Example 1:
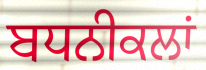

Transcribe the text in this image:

ਬਧਨੀਕਲਾਂ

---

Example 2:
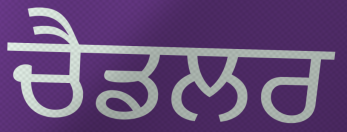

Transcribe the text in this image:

ਚੈਡਲਰ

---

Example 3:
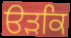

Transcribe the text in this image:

ੳੜਕਿ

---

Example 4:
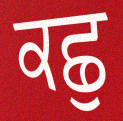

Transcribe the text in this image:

ਕਛੁ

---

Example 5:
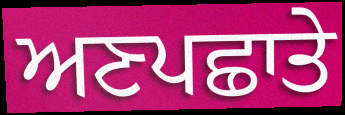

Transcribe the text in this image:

ਅਣਪਛਾਤੇ